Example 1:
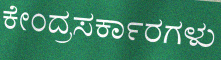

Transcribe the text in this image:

ಕೇಂದ್ರಸರ್ಕಾರಗಳು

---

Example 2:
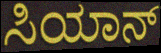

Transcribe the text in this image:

ಸಿಯಾನ್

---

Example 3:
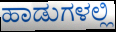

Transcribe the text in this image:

ಹಾಡುಗಳಲ್ಲಿ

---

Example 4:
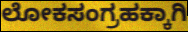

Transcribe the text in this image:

ಲೋಕಸಂಗ್ರಹಕ್ಕಾಗಿ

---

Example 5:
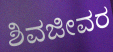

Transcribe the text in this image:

ಶಿವಜೀವರ